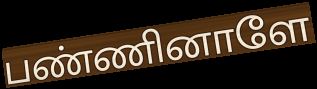
பண்ணினாளே